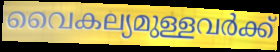
വൈകല്യമുള്ളവർക്ക്